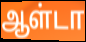
ஆள்டா